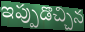
ఇప్పుడొచ్చిన